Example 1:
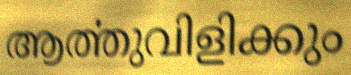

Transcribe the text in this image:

ആൎത്തുവിളിക്കും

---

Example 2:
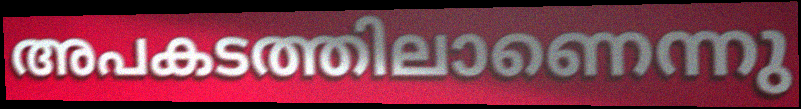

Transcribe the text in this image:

അപകടത്തിലാണെന്നു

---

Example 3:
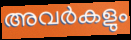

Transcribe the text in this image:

അവർകളും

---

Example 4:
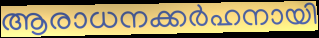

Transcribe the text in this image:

ആരാധനക്കർഹനായി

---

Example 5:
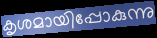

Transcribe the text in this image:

കൃശമായിപ്പോകുന്നു